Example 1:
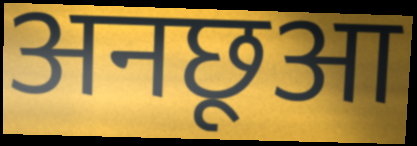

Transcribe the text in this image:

अनछूआ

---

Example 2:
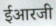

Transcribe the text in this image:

ईआरजी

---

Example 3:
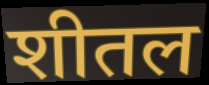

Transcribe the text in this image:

शीतल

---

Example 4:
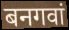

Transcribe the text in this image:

बनगवां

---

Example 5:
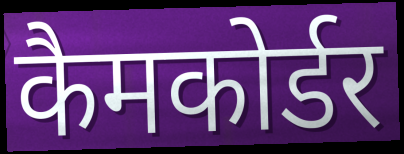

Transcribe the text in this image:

कैमकोर्डर